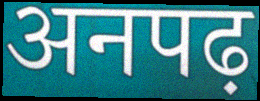
अनपढ़